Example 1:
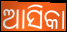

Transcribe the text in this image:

ଆସିକା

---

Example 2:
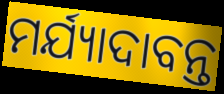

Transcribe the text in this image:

ମର୍ଯ୍ୟାଦାବନ୍ତ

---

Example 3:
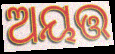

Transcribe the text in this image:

ଅୟତ୍ତ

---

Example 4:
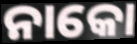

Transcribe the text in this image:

ନାକୋ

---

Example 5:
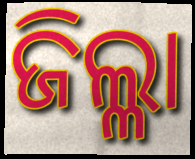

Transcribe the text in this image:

ଜିଲ୍ଳା